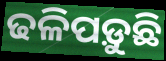
ଢଳିପଡ଼ୁଛି